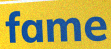
fame